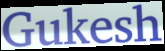
Gukesh